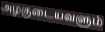
அழகுடையவளும்